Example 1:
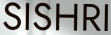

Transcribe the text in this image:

SISHRI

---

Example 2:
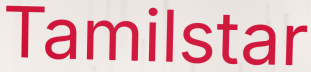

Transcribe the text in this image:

Tamilstar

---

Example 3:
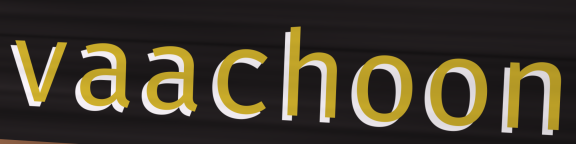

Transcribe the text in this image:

vaachoon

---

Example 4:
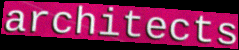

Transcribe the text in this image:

architects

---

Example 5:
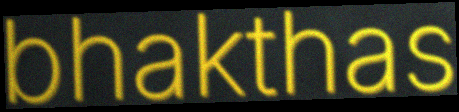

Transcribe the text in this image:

bhakthas